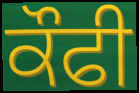
ਕੌਫੀ